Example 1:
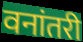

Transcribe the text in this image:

वनांतरी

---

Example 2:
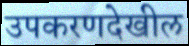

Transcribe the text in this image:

उपकरणदेखील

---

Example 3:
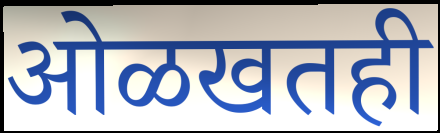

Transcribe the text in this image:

ओळखतही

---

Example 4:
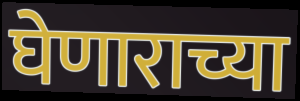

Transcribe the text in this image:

घेणाराच्या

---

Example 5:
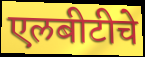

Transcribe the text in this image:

एलबीटीचे